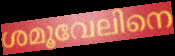
ശമൂവേലിനെ